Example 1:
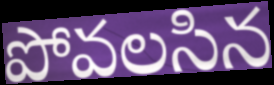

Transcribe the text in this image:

పోవలసిన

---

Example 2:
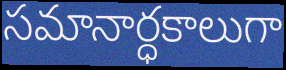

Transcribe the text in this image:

సమానార్ధకాలుగా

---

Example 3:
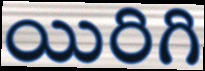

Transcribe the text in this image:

యిరిగి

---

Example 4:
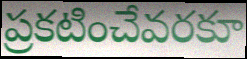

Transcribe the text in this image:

ప్రకటించేవరకూ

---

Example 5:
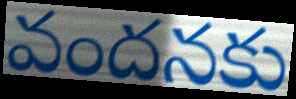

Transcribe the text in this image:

వందనకు